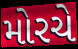
મોરચે